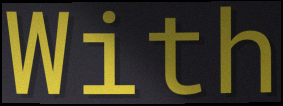
With